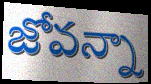
జోవన్నా